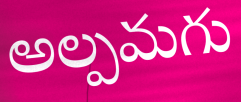
అల్పమగు